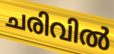
ചരിവിൽ